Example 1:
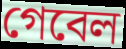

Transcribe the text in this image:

গেবেল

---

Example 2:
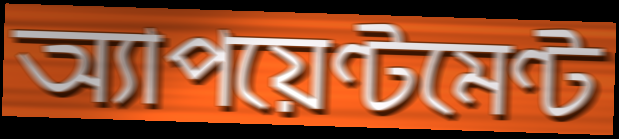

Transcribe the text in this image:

অ্যাপয়েণ্টমেণ্ট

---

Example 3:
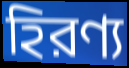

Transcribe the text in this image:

হিরণ্য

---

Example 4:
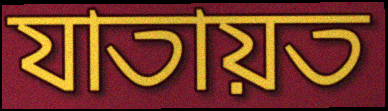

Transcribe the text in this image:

যাতায়ত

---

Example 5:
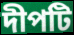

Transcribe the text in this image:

দীপটি